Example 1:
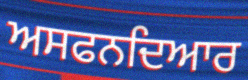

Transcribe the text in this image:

ਅਸਫਨਦਿਆਰ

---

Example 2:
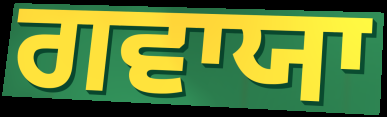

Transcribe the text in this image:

ਗਵਾਯਾ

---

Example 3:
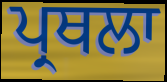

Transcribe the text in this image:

ਪ੍ਰਥਲਾ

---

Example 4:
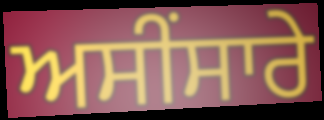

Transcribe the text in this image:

ਅਸੀਂਸਾਰੇ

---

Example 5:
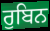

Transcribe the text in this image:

ਰੁਬਿਨ